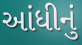
આંધીનું